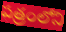
పత్రంలోని